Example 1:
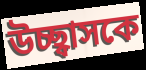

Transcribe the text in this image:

উচ্ছ্বাসকে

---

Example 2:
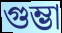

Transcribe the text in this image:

গুম্ভা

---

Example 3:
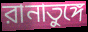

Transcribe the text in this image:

রানাতুঙ্গে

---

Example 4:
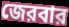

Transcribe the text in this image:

জেরবার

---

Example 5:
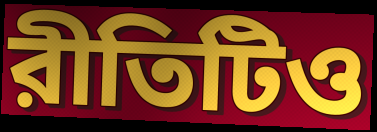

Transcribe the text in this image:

রীতিটিও